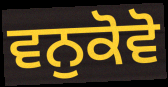
ਵਨੁਕੋਵੋ